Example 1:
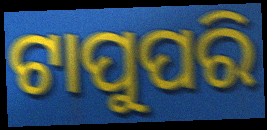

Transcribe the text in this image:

ଟାପୁପରି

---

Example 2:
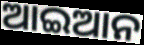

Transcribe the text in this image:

ଆଇଆନ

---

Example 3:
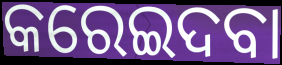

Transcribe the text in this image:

କରେଇଦବା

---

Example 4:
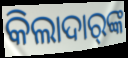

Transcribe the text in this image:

କିଲାଦାର୍‍ଙ୍କ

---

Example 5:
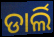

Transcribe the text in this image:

ଡାର୍ଲି